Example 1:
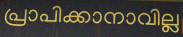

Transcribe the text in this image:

പ്രാപിക്കാനാവില്ല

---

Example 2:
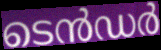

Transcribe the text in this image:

ടെൻഡർ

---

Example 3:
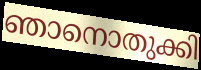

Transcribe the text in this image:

ഞാനൊതുക്കി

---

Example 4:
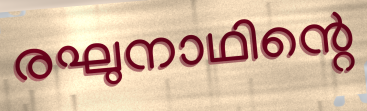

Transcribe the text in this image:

രഘുനാഥിന്റെ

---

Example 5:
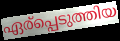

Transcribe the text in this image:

ഏര്പ്പെടുത്തിയ